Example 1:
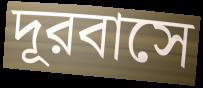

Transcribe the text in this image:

দূরবাসে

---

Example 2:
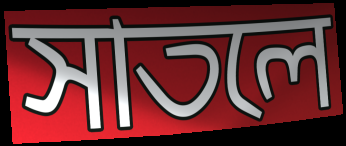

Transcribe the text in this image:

সাতলে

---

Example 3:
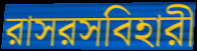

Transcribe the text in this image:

রাসরসবিহারী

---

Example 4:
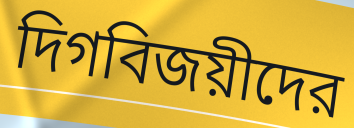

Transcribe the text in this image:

দিগবিজয়ীদের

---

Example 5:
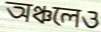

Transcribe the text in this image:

অঞ্চলেও